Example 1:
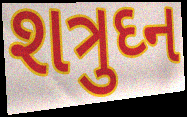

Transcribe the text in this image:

શત્રુઘ્ન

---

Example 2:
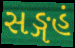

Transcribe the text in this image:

સઙ્ગહં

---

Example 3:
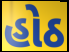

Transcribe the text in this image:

હોઠ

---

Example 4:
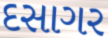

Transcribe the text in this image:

દસાગર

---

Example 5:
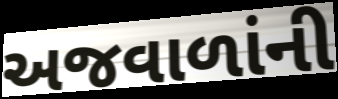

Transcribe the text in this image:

અજવાળાંની